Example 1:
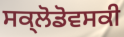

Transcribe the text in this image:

ਸਕ੍ਲੋਡੋਵਸਕੀ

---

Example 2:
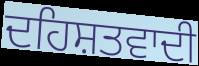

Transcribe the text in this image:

ਦਹਿਸ਼ਤਵਾਦੀ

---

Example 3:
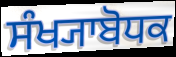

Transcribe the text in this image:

ਸੰਖ੍ਯਾਬੋਧਕ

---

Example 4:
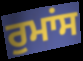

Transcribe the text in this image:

ਰੁਮਾਂਸ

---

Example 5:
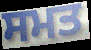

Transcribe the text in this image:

ਸਮਤ